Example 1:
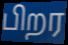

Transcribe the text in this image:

பிறர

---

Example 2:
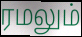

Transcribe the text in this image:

ரமலும்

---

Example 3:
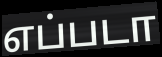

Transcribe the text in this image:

எப்படா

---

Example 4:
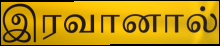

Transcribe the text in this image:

இரவானால்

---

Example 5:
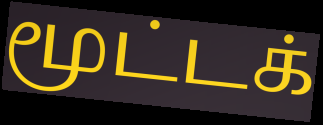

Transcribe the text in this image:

மூட்டக்